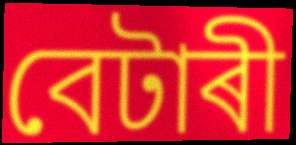
বেটাৰী